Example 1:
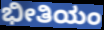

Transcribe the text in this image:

ಭೀತಿಯಂ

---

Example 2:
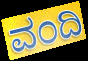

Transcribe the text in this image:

ವಂದಿ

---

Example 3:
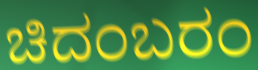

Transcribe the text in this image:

ಚಿದಂಬರಂ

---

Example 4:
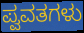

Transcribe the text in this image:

ಪ್ವವತಗಳು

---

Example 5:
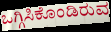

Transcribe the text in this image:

ಒಗ್ಗಿಸಿಕೊಂಡಿರುವ